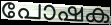
പോഷക